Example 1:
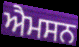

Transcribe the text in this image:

ਐਮਸਨ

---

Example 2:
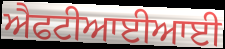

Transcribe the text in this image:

ਐਫਟੀਆਈਆਈ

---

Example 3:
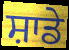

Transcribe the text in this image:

ਸ਼ਾਡੇ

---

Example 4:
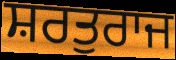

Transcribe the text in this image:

ਸ਼ਰਤੁਰਾਜ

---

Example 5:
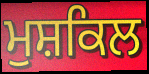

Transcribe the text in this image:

ਮੁਸ਼ਕਿਲ